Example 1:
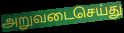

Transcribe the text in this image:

அறுவடைசெய்து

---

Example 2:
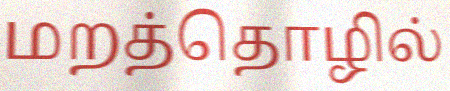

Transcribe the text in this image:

மறத்தொழில்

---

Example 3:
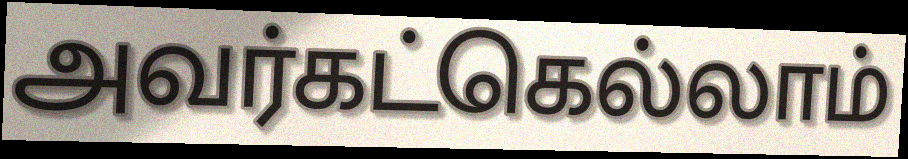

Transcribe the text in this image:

அவர்கட்கெல்லாம்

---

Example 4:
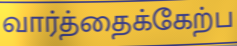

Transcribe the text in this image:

வார்த்தைக்கேற்ப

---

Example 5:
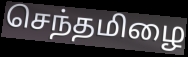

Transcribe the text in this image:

செந்தமிழை